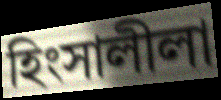
হিংসালীলা